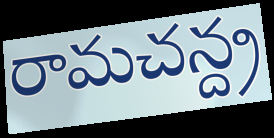
రామచన్ద్ర